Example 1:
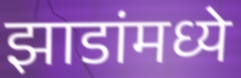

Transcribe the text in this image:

झाडांमध्ये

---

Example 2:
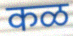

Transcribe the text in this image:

कळ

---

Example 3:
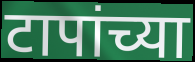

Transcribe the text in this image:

टापांच्या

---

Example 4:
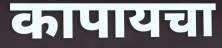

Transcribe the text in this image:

कापायचा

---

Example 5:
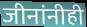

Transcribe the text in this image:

जीनांनीही